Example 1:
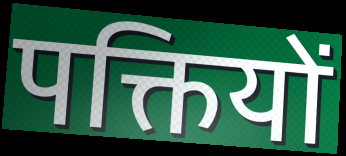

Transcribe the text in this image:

पक्तियों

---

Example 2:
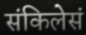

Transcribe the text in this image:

संकिलेसं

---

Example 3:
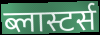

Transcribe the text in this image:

ब्लास्टर्स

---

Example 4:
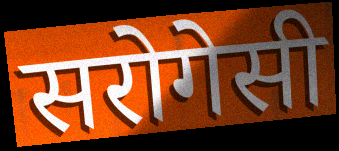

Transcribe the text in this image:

सरोगेसी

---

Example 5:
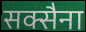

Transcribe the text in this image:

सक्सैना